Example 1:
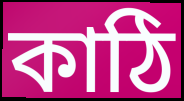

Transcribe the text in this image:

কাঠি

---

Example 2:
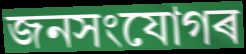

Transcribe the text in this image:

জনসংযোগৰ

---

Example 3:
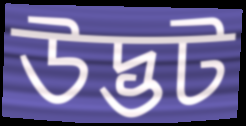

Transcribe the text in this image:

উদ্ভট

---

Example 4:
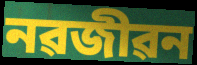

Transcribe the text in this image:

নৱজীৱন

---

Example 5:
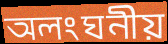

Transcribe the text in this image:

অলংঘনীয়